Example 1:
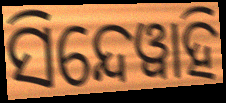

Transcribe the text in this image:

ସିନ୍ଦେୱାହି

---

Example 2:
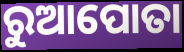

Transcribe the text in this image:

ରୁଆପୋତା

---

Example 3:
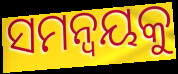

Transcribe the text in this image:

ସମନ୍ବୟକୁ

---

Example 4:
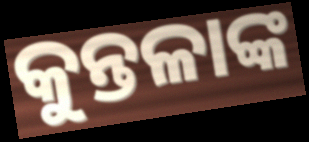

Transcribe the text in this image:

କୁନ୍ତଳାଙ୍କ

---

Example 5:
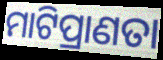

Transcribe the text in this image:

ମାଟିପ୍ରାଣତା